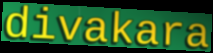
divakara